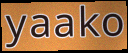
yaako